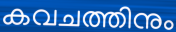
കവചത്തിനും